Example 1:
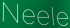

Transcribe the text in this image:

Neele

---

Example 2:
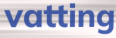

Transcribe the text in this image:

vatting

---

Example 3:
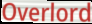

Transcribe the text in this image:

Overlord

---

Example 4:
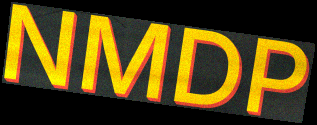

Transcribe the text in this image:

NMDP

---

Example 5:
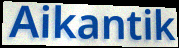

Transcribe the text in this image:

Aikantik